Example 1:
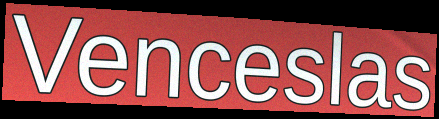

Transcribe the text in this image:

Venceslas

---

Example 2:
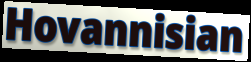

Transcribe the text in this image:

Hovannisian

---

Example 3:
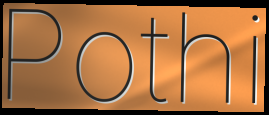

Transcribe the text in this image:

Pothi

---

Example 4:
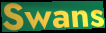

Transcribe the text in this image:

Swans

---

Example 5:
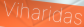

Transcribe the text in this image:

Viharidas